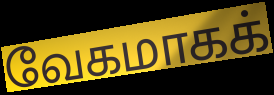
வேகமாகக்